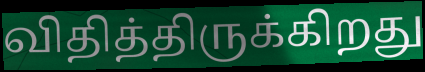
விதித்திருக்கிறது